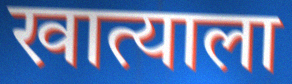
खात्याला